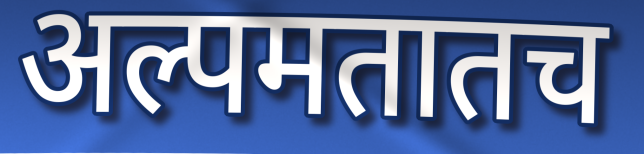
अल्पमतातच